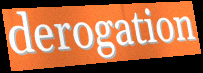
derogation